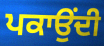
ਪਕਾਉਂਦੀ